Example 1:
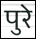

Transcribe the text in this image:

पुरे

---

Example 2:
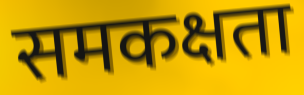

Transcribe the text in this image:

समकक्षता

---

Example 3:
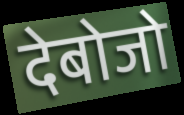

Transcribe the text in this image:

देबोजो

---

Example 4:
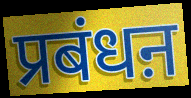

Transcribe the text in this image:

प्रबंधऩ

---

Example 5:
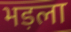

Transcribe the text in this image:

भड़ला